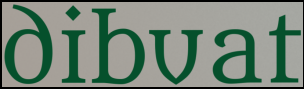
dibuat